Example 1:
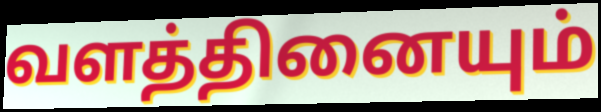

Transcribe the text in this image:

வளத்தினையும்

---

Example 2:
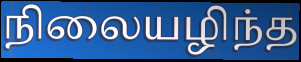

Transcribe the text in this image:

நிலையழிந்த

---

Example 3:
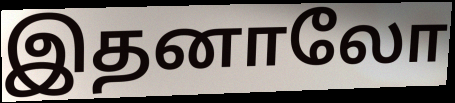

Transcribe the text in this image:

இதனாலோ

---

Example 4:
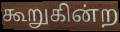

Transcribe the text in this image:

கூறுகின்ற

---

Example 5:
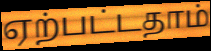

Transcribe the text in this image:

ஏற்பட்டதாம்